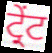
ਟ੍ਰੇਂਟ